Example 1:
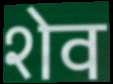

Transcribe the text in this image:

शेव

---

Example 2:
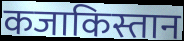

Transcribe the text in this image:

कजाकिस्तान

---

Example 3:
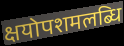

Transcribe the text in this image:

क्षयोपशमलब्धि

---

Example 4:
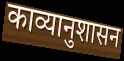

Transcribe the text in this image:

काव्यानुशासन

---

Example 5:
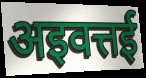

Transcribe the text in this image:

अइवत्तई